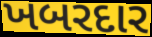
ખબરદાર